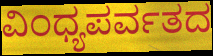
ವಿಂಧ್ಯಪರ್ವತದ